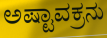
ಅಷ್ಟಾವಕ್ರನು